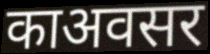
काअवसर